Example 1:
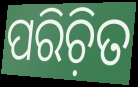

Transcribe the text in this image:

ପରିଚ଼ିତ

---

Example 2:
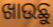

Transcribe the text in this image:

ଖାଉଛୁ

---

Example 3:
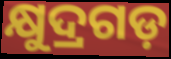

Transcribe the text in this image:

କ୍ଷୁଦ୍ରଗଡ଼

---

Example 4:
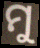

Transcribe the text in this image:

ମୁ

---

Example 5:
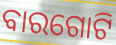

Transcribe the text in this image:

ବାରଗୋଟି